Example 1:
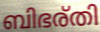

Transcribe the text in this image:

ബിഭര്തി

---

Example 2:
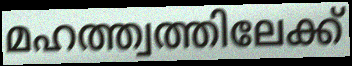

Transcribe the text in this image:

മഹത്ത്വത്തിലേക്ക്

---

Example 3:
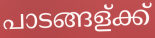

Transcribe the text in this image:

പാടങ്ങള്ക്ക്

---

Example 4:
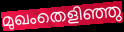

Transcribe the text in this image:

മുഖംതെളിഞ്ഞു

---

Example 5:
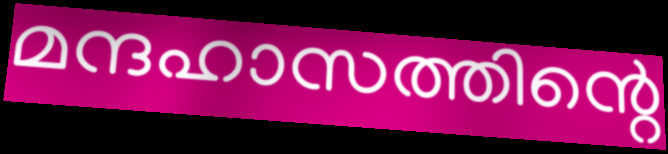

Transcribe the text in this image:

മന്ദഹാസത്തിന്റെ